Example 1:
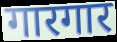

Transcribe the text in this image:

गारगार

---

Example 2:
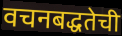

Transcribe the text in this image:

वचनबद्धतेची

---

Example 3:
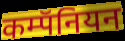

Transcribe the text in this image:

कम्पॅनियन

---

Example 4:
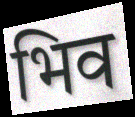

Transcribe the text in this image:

भिव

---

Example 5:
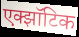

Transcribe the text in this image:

एक्झॉटिक